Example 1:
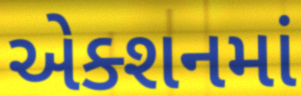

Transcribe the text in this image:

એક્શનમાં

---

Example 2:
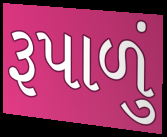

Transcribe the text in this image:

રૂપાળું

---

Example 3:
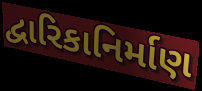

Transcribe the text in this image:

દ્વારિકાનિર્માણ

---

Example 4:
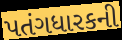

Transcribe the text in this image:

પતંગધારકની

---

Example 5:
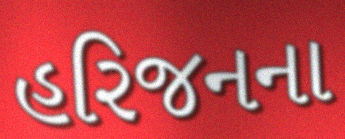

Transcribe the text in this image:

હરિજનના